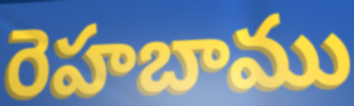
రెహబాము